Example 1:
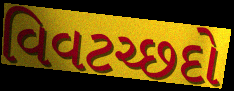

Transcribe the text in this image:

વિવટચ્છદો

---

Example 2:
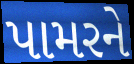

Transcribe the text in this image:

પામરને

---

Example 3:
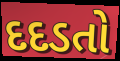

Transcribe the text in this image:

દદડતો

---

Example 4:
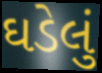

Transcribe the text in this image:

ઘડેલું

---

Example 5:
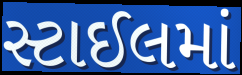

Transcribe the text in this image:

સ્ટાઈલમાં